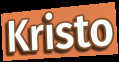
Kristo